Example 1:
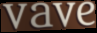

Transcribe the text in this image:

vave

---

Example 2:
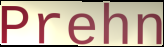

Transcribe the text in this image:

Prehn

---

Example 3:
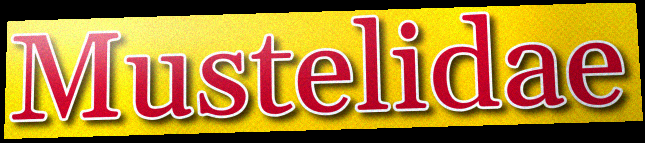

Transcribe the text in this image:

Mustelidae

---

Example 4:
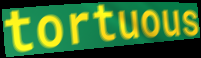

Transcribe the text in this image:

tortuous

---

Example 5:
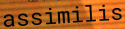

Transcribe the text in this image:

assimilis